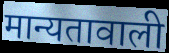
मान्यतावाली